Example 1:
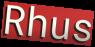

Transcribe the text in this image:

Rhus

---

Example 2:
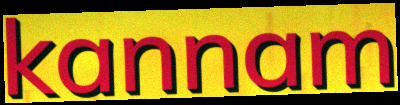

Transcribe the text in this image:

kannam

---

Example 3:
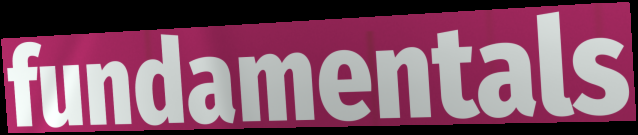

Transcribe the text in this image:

fundamentals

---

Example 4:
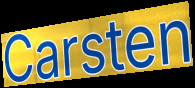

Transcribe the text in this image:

Carsten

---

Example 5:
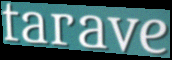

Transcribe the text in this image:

tarave